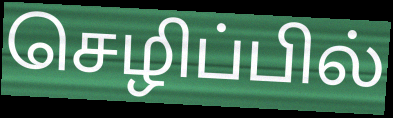
செழிப்பில்